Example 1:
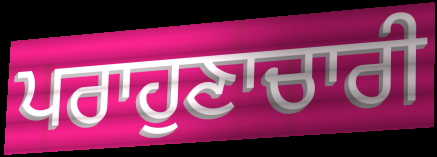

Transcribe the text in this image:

ਪਰਾਹੁਣਾਚਾਰੀ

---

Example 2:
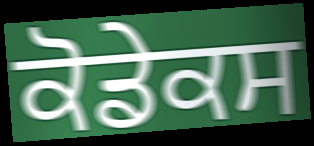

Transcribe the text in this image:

ਕੋਡੇਕਸ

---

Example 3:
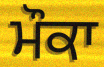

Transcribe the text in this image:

ਮੌਕਾ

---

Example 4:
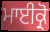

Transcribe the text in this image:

ਮਾਈਕ੍ਰੋ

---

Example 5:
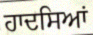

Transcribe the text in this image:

ਹਾਦਸਿਆਂ